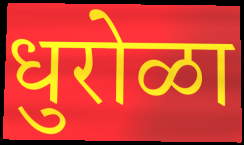
धुरोळा